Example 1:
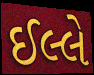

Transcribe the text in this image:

ઈલ્લે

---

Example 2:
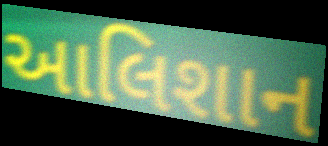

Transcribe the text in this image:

આલિશાન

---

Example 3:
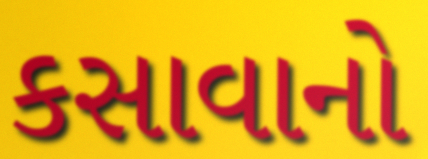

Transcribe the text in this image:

કસાવાનો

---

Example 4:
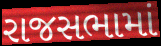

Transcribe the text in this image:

રાજસભામાં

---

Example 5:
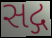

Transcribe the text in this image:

સદ્ગ